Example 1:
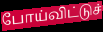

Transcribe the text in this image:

போய்விட்டுச்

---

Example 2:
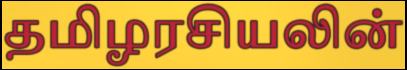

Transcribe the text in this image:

தமிழரசியலின்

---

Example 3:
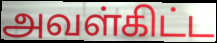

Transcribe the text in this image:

அவள்கிட்ட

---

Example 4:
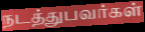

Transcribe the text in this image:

நடத்துபவர்கள்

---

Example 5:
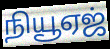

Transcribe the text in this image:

நியூஏஜ்